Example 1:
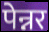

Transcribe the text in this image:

पेन्नर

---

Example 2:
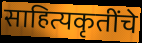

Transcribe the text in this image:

साहित्यकृतींचे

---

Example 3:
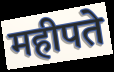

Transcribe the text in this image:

महीपते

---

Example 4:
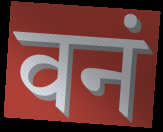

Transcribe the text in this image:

वनं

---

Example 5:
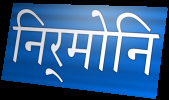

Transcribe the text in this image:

निर्मोनि